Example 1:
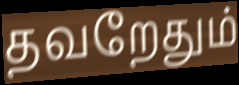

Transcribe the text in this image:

தவறேதும்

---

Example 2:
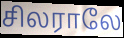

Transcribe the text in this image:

சிலராலே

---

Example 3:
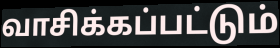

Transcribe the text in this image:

வாசிக்கப்பட்டும்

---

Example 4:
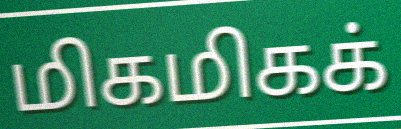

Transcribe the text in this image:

மிகமிகக்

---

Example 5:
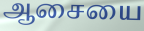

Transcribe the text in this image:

ஆசையை